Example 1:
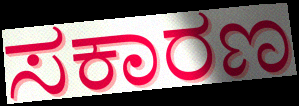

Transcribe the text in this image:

ಸಕಾರಣ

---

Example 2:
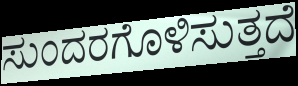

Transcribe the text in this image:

ಸುಂದರಗೊಳಿಸುತ್ತದೆ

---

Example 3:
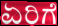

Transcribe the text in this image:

ಏರಿಗೆ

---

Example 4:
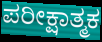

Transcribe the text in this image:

ಪರೀಕ್ಷಾತ್ಮಕ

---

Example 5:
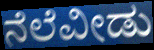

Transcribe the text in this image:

ನೆಲೆವೀಡು